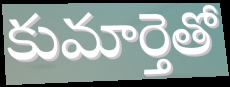
కుమార్తెతో